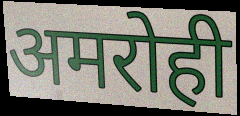
अमरोही